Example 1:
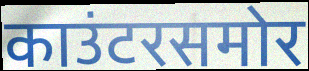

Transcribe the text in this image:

काउंटरसमोर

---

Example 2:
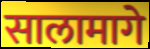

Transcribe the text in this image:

सालामागे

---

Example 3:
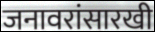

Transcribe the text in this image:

जनावरांसारखी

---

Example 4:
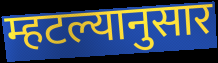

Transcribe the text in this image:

म्हटल्यानुसार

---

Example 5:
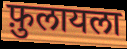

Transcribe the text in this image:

फ़ुलायला